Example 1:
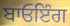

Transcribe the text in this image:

ਬਾਓਇੰਗ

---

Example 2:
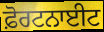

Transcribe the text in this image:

ਫ਼ੋਰਟਨਾਈਟ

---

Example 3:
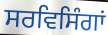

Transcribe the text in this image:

ਸਰਵਿਸਿੰਗਾਂ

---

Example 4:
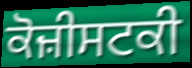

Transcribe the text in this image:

ਕੋਜ਼ੀਸਟਕੀ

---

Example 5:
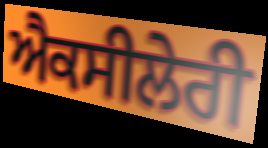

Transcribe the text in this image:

ਐਕਸੀਲੇਰੀ